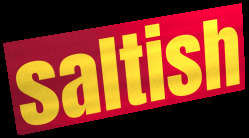
saltish